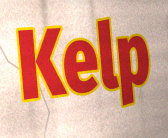
Kelp